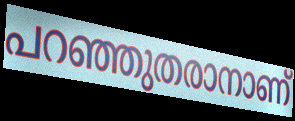
പറഞ്ഞുതരാനാണ്